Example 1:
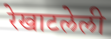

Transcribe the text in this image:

रेखाटलेली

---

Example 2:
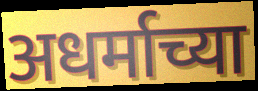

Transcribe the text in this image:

अधर्माच्या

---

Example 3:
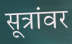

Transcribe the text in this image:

सूत्रांवर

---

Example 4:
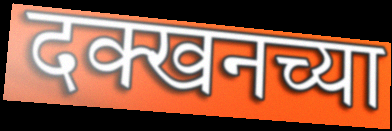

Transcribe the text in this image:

दक्खनच्या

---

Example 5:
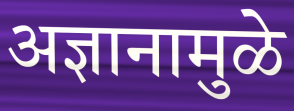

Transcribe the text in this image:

अज्ञानामुळे